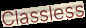
Classless